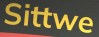
Sittwe